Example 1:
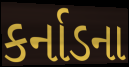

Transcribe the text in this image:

કર્નાડના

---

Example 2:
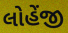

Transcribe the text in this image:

લોહેંજી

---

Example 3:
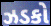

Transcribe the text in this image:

ઝડકો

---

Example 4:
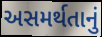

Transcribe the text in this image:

અસમર્થતાનું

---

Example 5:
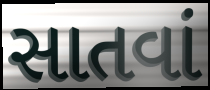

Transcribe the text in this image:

સાતવાં